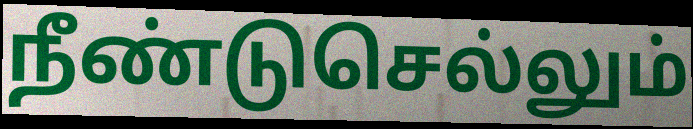
நீண்டுசெல்லும்